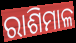
ରାଶିମାଳ